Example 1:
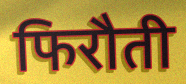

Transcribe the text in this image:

फिरौती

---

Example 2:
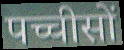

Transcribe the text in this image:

पच्चीसों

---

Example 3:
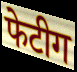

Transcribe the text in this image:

फेटीग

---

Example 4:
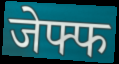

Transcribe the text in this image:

जेफ्फ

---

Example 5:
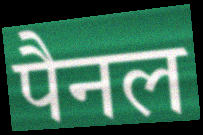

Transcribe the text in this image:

पैनल